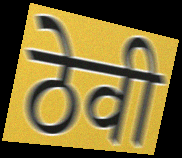
ठेवी